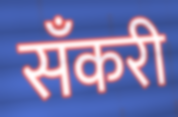
सँकरी